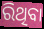
ରିଥିବା